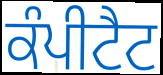
ਕੰਪੀਟੈਟ